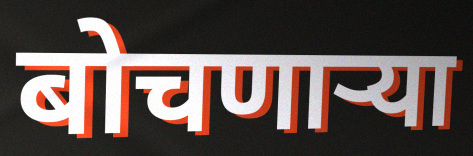
बोचणाऱ्या